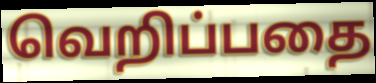
வெறிப்பதை